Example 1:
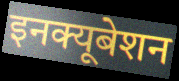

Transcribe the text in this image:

इनक्यूबेशन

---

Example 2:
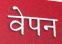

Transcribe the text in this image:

वेपन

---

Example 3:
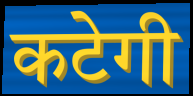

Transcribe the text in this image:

कटेगी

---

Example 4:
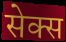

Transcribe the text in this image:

सेक्स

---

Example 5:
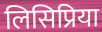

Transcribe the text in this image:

लिसिप्रिया